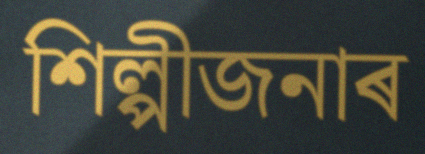
শিল্পীজনাৰ